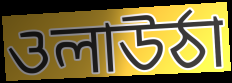
ওলাউঠা